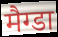
मैग्डा